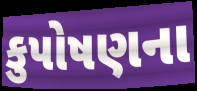
કુપોષણના